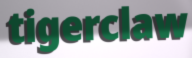
tigerclaw